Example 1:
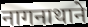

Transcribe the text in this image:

नागनाथाने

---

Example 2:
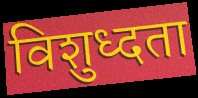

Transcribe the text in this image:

विशुध्दता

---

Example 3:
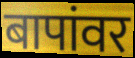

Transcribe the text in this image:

बापांवर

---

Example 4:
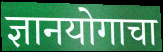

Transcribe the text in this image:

ज्ञानयोगाचा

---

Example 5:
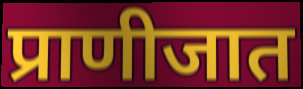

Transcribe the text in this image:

प्राणीजात